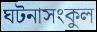
ঘটনাসংকুল